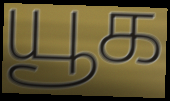
யூக